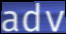
adv